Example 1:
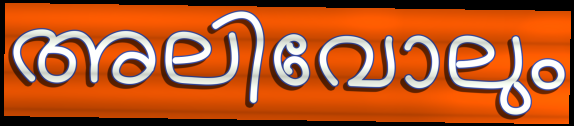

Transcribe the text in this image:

അലിവോലും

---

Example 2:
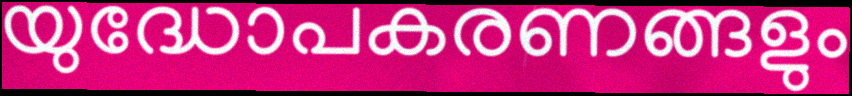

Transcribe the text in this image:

യുദ്ധോപകരണങ്ങളും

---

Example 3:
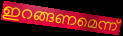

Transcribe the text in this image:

ഇറങ്ങണമെന്ന്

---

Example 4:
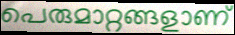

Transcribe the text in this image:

പെരുമാറ്റങ്ങളാണ്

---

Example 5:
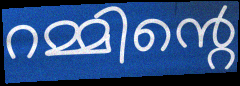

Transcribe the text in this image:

റമ്മിന്റെ